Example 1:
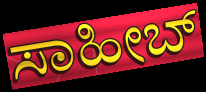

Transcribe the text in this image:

ಸಾಹೀಬ್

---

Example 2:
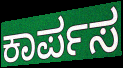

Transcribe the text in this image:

ಕಾರ್ಪಸ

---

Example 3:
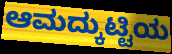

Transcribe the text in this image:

ಆಮದ್ಕುಟ್ಟಿಯ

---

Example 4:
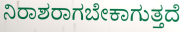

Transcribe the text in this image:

ನಿರಾಶರಾಗಬೇಕಾಗುತ್ತದೆ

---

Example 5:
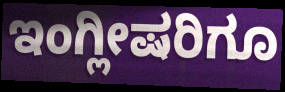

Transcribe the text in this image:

ಇಂಗ್ಲೀಷರಿಗೂ